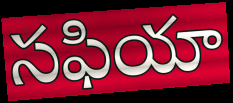
సఫియా